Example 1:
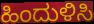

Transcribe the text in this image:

ಹಿಂದುಳಿಸಿ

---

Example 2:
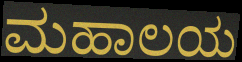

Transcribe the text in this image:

ಮಹಾಲಯ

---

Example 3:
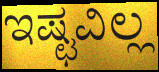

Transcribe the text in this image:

ಇಷ್ಟವಿಲ್ಲ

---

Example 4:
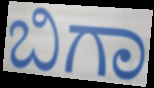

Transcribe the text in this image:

ಬಿಗಾ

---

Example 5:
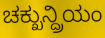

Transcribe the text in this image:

ಚಕ್ಖುನ್ದ್ರಿಯಂ